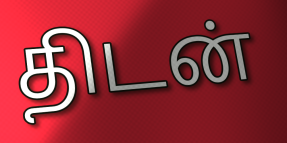
திடன்